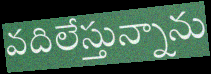
వదిలేస్తున్నాను